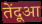
तेंदूआ